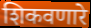
शिकवणारे